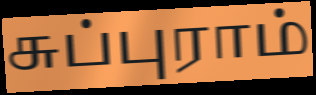
சுப்புராம்